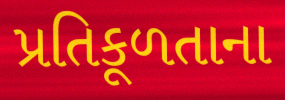
પ્રતિકૂળતાના